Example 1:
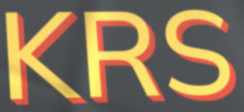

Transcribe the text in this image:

KRS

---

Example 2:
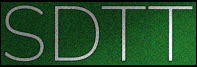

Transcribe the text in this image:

SDTT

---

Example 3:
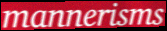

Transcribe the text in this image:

mannerisms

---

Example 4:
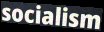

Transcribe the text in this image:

socialism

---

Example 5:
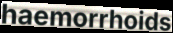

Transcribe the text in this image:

haemorrhoids